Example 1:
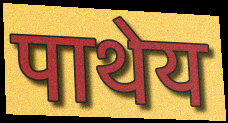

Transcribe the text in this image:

पाथेय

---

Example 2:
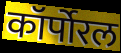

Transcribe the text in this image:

कॉर्पोरल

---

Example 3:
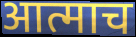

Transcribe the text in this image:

आत्माच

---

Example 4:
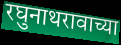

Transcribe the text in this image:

रघुनाथरावाच्या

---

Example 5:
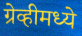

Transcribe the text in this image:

ग्रेव्हीमध्ये